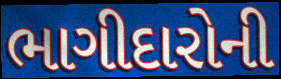
ભાગીદારોની